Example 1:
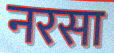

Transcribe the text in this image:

नरसा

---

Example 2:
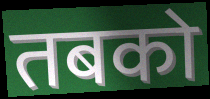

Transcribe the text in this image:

तबको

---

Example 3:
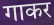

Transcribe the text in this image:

गाकर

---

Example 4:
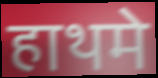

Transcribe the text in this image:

हाथमे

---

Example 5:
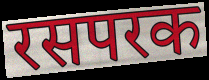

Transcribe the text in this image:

रसपरक